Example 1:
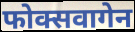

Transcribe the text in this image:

फोक्सवागेन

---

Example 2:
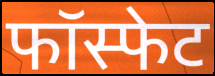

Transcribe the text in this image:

फॉस्फेट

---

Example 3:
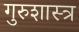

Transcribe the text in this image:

गुरुशास्त्र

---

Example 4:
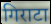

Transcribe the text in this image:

गिराटा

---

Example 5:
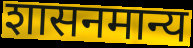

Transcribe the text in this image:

शासनमान्य